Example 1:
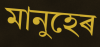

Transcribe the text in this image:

মানুহেৰ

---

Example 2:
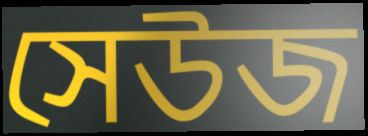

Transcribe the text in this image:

সেউজ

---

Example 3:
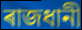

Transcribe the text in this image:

ৰাজধানী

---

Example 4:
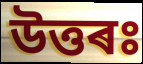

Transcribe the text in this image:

উত্তৰঃ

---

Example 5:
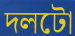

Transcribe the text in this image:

দলটো